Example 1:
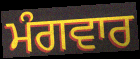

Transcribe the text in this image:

ਮੰਗਵਾਰ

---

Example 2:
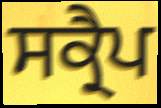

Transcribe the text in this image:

ਸਕ੍ਰੈਪ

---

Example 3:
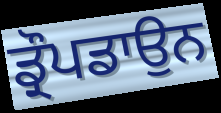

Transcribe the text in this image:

ਡ੍ਰੌਪਡਾਉਨ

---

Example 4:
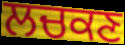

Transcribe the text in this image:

ਲਚਕਣ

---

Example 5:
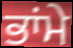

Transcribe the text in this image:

ਭਾਂਮੇ